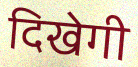
दिखेगी